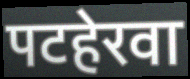
पटहेरवा